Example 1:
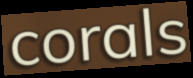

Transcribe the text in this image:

corals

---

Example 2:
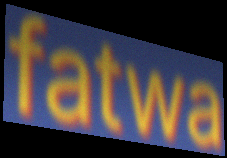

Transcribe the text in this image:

fatwa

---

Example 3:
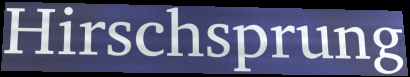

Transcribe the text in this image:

Hirschsprung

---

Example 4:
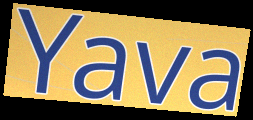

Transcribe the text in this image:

Yava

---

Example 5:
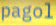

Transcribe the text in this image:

pagol